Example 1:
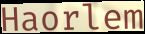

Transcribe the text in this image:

Haorlem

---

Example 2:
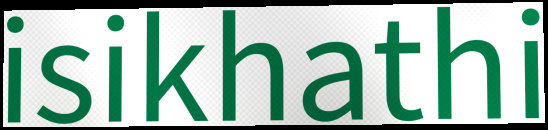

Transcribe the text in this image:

isikhathi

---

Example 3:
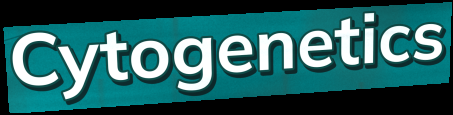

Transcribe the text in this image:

Cytogenetics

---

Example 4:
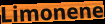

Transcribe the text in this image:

Limonene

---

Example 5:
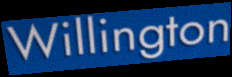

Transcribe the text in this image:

Willington